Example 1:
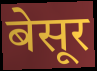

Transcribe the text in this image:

बेसूर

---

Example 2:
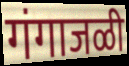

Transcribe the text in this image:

गंगाजळी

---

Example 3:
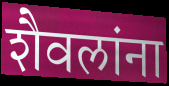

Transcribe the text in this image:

शैवलांना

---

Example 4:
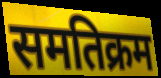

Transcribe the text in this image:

समतिक्रम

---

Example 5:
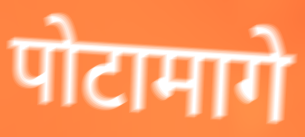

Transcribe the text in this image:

पोटामागे